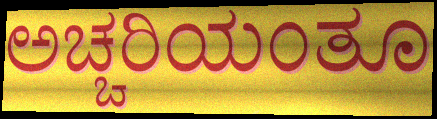
ಅಚ್ಚರಿಯಂತೂ